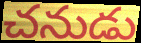
చనుడు